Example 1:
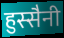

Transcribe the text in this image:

हुस्सैनी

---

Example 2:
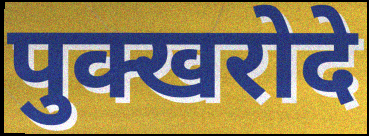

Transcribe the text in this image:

पुक्खरोदे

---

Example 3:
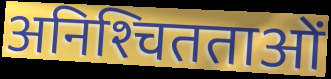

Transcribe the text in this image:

अनिश्चितताओं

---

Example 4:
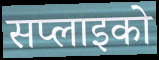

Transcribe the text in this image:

सप्लाइको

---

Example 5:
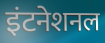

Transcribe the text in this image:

इंटनेशनल